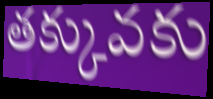
తక్కువకు